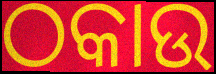
ଠକାଉ